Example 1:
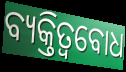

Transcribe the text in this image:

ବ୍ୟକ୍ତିତ୍ୱବୋଧ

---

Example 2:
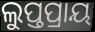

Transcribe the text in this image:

ଲୁପ୍ତପ୍ରାୟ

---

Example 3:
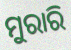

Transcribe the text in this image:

ମୁରାରି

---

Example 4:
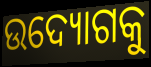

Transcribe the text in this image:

ଉଦ୍ୟୋଗକୁ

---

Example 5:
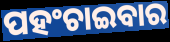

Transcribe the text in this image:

ପହଂଚାଇବାର